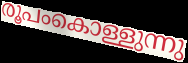
രൂപംകൊള്ളുന്നു